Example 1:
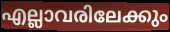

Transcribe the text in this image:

എല്ലാവരിലേക്കും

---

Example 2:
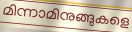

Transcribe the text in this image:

മിന്നാമിനുങ്ങുകളെ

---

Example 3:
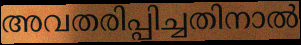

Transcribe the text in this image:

അവതരിപ്പിച്ചതിനാൽ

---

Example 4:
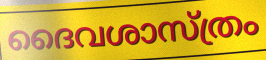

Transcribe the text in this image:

ദൈവശാസ്ത്രം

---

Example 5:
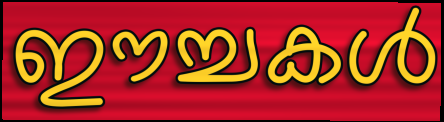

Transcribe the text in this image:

ഈച്ചകൾ